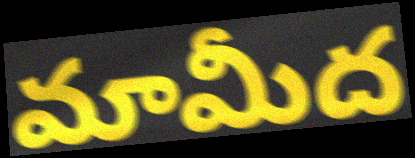
మామీద